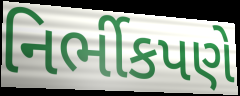
નિર્ભીકપણે